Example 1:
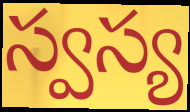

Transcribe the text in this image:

స్వస్య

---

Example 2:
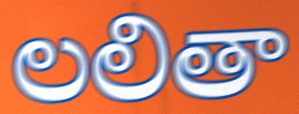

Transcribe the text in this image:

లలితా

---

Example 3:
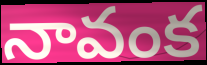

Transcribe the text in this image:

నావంక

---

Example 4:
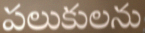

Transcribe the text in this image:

పలుకులను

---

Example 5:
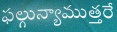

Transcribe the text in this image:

ఫల్గున్యాముత్తరే